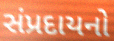
સંપ્રદાયનો